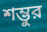
শম্ভুর